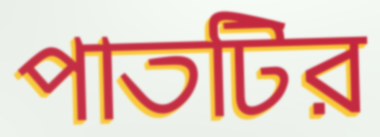
পাতটির